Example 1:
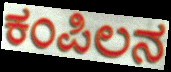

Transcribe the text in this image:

ಕಂಪಿಲನ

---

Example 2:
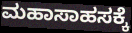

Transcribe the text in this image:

ಮಹಾಸಾಹಸಕ್ಕೆ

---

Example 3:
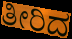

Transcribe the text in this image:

ತೀರಿದ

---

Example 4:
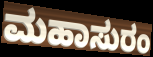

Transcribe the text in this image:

ಮಹಾಸುರಂ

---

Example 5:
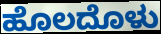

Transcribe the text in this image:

ಹೊಲದೊಳು